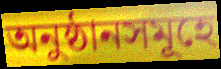
অনুষ্ঠানসমূহে